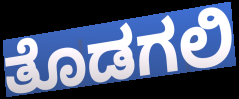
ತೊಡಗಲಿ